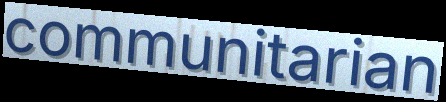
communitarian